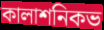
কালাশনিকভ